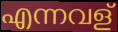
എന്നവള്